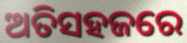
ଅତିସହଜରେ